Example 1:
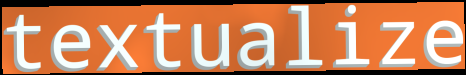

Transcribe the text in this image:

textualize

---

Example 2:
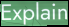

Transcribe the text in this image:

Explain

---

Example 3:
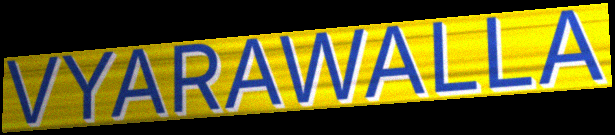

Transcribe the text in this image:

VYARAWALLA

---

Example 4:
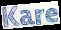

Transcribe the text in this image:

Kare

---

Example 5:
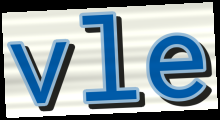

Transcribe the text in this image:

vle